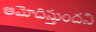
ఆమోదిస్తుందని